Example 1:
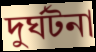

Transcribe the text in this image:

দুৰ্ঘটনা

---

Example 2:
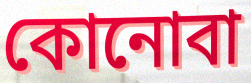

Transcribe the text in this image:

কোনোবা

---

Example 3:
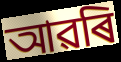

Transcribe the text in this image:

আৱৰি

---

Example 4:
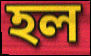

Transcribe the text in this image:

হল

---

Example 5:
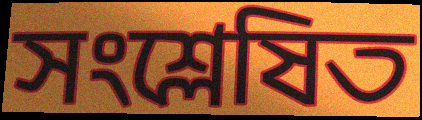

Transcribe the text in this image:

সংশ্লেষিত